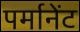
पर्मानेंट